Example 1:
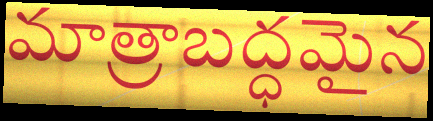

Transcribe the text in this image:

మాత్రాబద్ధమైన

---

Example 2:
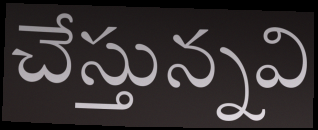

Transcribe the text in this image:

చేస్తున్నవి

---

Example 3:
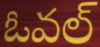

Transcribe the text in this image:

ఓవల్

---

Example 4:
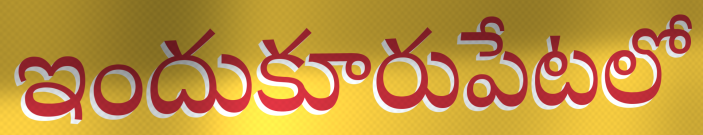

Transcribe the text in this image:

ఇందుకూరుపేటలో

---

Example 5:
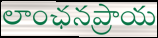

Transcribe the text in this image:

లాంఛనప్రాయ